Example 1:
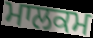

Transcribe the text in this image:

ਮਾਲਕਮ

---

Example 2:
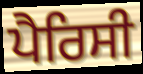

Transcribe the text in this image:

ਪੈਰਿਸੀ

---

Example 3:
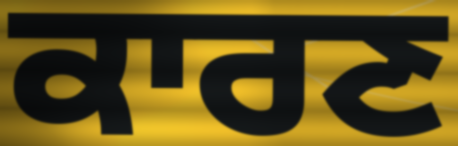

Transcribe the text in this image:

ਕਾਰਣ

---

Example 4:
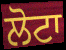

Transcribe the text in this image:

ਲੋਟਾ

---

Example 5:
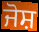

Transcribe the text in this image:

ਜੋਸ਼